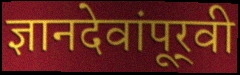
ज्ञानदेवांपूर्वी